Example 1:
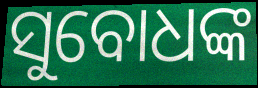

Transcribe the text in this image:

ସୁବୋଧଙ୍କ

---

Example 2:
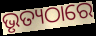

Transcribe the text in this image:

ଭୃତ୍ୟଠାରେ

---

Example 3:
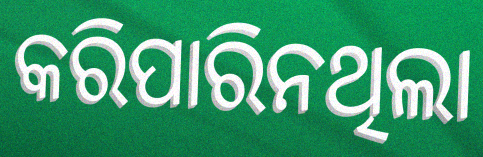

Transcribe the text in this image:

କରିପାରିନଥିଲା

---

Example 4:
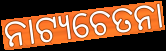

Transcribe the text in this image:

ନାଟ୍ୟଚେତନା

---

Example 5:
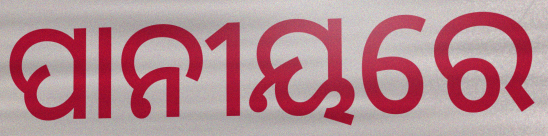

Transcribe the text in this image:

ପାନୀୟରେ